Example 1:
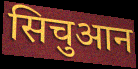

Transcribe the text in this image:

सिचुआन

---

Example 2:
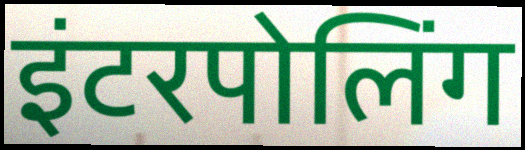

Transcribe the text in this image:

इंटरपोलिंग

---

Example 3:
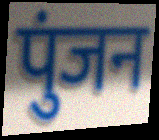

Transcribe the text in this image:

पुंजन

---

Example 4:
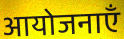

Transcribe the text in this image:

आयोजनाएँ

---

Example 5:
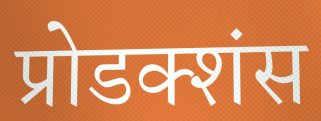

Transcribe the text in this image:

प्रोडक्शंस